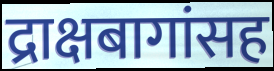
द्राक्षबागांसह